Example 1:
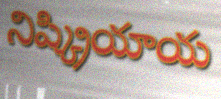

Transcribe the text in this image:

నిష్క్రియాయ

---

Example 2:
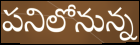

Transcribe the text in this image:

పనిలోనున్న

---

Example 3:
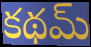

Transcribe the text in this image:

కథమ్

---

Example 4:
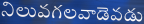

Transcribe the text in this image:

నిలువగలవాడెవడు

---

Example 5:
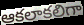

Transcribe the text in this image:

ఆకలాకలిగా